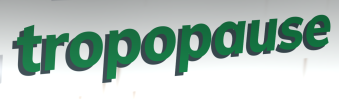
tropopause